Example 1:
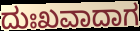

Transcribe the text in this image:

ದುಃಖವಾದಾಗ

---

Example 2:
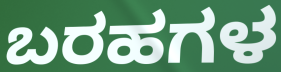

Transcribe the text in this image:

ಬರಹಗಳ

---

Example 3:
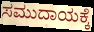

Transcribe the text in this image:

ಸಮುದಾಯಕ್ಕೆ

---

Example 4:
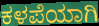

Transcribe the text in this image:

ಕಳಪೆಯಾಗಿ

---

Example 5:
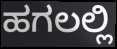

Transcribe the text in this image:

ಹಗಲಲ್ಲಿ